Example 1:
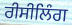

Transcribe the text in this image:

ਰੀਸੀਲਿੰਗ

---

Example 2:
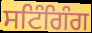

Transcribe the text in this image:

ਸਟਿੰਗਿੰਗ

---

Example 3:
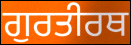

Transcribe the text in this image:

ਗੁਰਤੀਰਥ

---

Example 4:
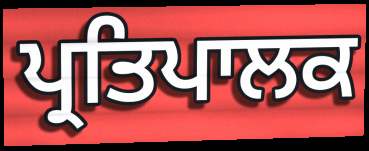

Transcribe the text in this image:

ਪ੍ਰਤਿਪਾਲਕ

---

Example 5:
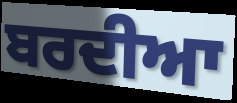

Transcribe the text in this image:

ਬਰਦੀਆ